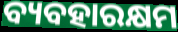
ବ୍ୟବହାରକ୍ଷମ